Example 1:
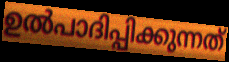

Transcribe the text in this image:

ഉൽപാദിപ്പിക്കുന്നത്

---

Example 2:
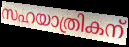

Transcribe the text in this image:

സഹയാത്രികന്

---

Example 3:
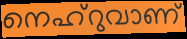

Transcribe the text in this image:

നെഹ്റുവാണ്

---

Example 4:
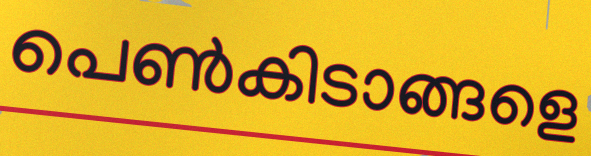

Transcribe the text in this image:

പെൺകിടാങ്ങളെ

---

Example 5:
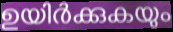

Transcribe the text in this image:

ഉയിർക്കുകയും